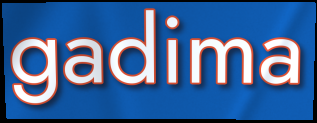
gadima